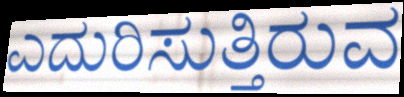
ಎದುರಿಸುತ್ತಿರುವ